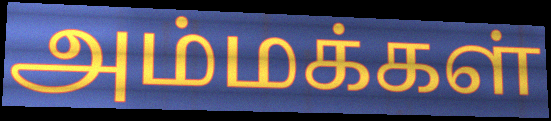
அம்மக்கள்